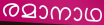
രമാനാഥ